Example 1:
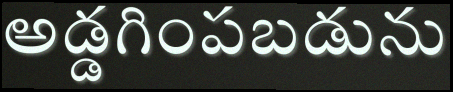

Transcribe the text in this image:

అడ్డగింపబడును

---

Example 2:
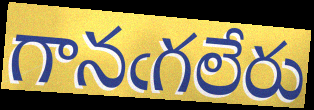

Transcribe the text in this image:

గానఁగలేరు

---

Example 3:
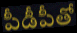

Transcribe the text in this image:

పీడీపీతో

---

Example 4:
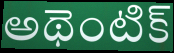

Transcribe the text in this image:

అథెంటిక్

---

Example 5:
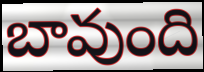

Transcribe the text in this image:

బావుంది